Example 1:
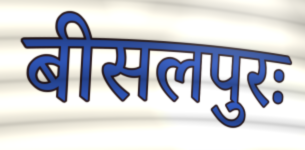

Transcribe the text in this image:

बीसलपुरः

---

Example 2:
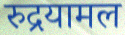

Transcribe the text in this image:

रुद्रयामल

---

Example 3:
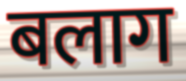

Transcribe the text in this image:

बलाग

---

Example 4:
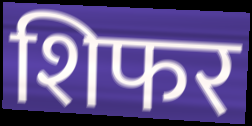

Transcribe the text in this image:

शिफर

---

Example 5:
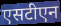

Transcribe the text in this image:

एसटीएन